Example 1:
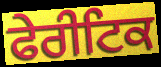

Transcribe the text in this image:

ਫੇਰੀਟਿਕ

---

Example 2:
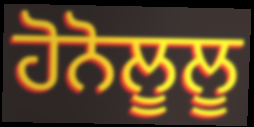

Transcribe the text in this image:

ਹੋਨੋਲੂਲੂ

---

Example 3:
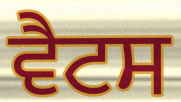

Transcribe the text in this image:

ਵੈਟਸ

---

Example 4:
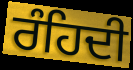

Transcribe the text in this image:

ਰੰਹਿਦੀ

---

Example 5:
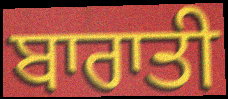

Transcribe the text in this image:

ਬਾਰਾਤੀ